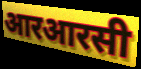
आरआरसी